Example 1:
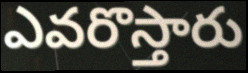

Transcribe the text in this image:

ఎవరొస్తారు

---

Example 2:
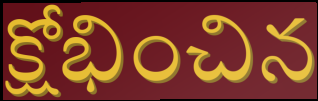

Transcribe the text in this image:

క్షోభించిన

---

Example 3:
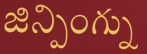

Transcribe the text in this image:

జిన్పింగ్ను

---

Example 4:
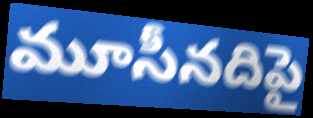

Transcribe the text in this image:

మూసీనదిపై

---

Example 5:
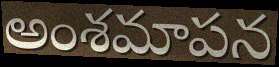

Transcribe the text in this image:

అంశమాపన